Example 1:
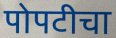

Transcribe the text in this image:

पोपटीचा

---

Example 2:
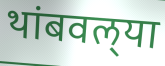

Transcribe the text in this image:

थांबवल्या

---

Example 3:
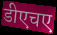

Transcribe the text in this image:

डीएचए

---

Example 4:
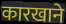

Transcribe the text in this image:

कारखाने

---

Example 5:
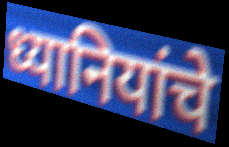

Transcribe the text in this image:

ध्यानियांचे